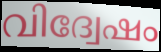
വിദ്വേഷം